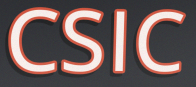
CSIC